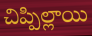
చిప్పిల్లాయి